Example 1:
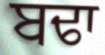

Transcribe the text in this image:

ਬਢਾ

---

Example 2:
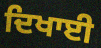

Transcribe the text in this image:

ਦਿਖਾਈ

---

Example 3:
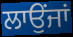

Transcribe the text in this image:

ਲਾਉਂਜਾਂ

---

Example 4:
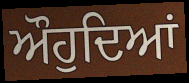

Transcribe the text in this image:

ਔਹੁਦਿਆਂ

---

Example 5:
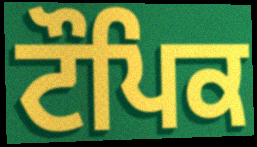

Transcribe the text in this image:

ਟੌਪਿਕ